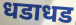
धडाधड